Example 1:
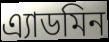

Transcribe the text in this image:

এ্যাডমিন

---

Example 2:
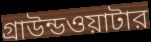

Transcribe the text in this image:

গ্রাউন্ডওয়াটার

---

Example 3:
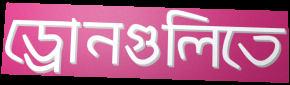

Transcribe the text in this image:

ড্রোনগুলিতে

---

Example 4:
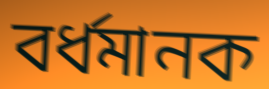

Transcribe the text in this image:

বর্ধমানক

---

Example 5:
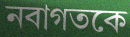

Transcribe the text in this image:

নবাগতকে